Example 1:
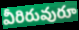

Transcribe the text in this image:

వీరిరువురూ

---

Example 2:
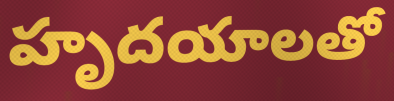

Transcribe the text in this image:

హృదయాలతో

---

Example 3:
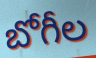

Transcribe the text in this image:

బోగీల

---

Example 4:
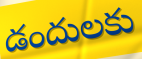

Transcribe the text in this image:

డందులకు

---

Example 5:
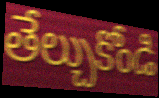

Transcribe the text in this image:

తేల్చుకోండి